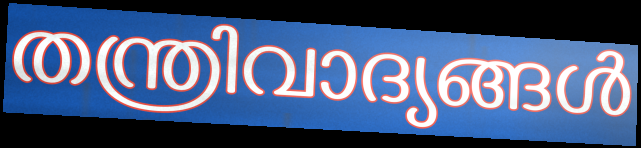
തന്ത്രിവാദ്യങ്ങൾ